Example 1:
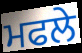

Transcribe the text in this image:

ਮਫਲੇ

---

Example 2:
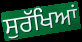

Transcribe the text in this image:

ਸੁਰੱਖਿਆਂ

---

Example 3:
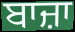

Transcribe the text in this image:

ਬਾਜ਼ਾ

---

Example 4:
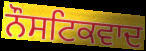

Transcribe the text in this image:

ਨੌਸਟਿਕਵਾਦ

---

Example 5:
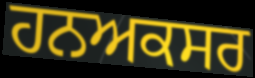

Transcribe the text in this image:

ਹਨਅਕਸਰ